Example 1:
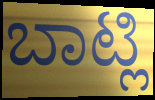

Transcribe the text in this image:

ಬಾಟ್ಲಿ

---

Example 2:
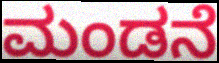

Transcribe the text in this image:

ಮಂಡನೆ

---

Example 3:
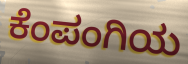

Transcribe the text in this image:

ಕೆಂಪಂಗಿಯ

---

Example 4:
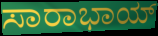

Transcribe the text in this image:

ಸಾರಾಭಾಯ್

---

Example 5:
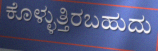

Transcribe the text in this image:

ಕೊಳ್ಳುತ್ತಿರಬಹುದು